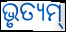
ଭୃତ୍ୟମ୍